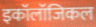
इकॉलॉजिकल